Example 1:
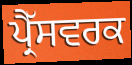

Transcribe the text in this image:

ਪ੍ਰੈੱਸਵਰਕ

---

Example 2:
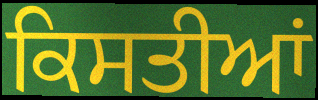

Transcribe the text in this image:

ਕਿਸਤੀਆਂ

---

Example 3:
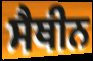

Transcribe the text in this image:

ਸੈਥੀਨ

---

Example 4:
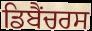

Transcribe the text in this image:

ਡਿਬੈਂਚਰਸ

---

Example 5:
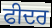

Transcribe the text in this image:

ਫੀਦਰ